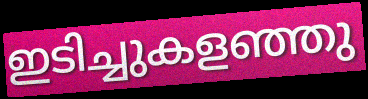
ഇടിച്ചുകളഞ്ഞു